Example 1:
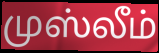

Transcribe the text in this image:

முஸ்லீம்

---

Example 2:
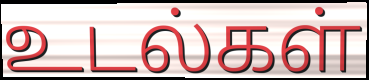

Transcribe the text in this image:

உடல்கள்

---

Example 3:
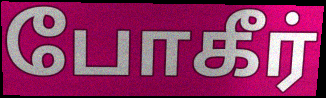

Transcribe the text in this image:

போகீர்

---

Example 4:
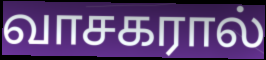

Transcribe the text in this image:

வாசகரால்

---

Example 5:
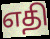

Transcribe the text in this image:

எதி